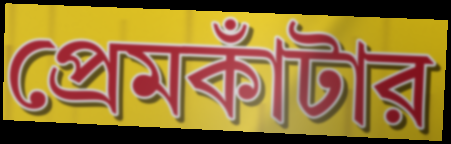
প্রেমকাঁটার